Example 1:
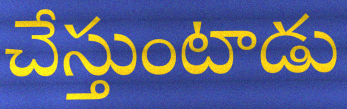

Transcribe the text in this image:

చేస్తుంటాడు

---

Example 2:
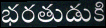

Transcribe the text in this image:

భరతుడుకి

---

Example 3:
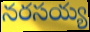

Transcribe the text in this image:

నరసయ్య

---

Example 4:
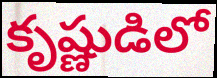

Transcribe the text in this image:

కృష్ణుడిలో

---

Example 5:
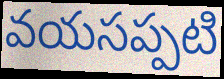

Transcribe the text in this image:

వయసప్పటి